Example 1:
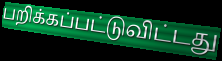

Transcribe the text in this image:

பறிக்கப்பட்டுவிட்டது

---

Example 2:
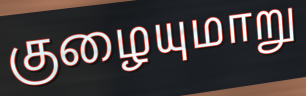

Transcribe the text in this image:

குழையுமாறு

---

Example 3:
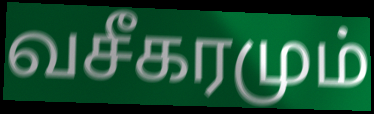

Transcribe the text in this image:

வசீகரமும்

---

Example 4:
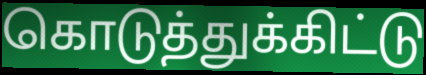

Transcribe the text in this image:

கொடுத்துக்கிட்டு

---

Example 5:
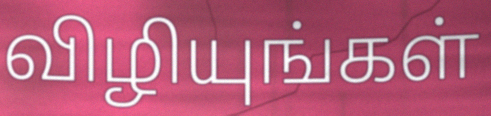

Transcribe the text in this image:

விழியுங்கள்